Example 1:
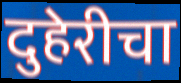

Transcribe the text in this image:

दुहेरीचा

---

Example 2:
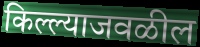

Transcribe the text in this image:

किल्ल्याजवळील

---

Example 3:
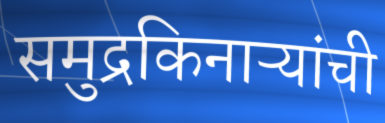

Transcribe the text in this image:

समुद्रकिनाऱ्यांची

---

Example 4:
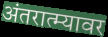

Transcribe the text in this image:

अंतरात्म्यावर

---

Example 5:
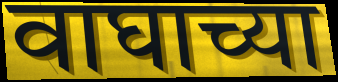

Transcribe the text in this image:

वाघाच्या